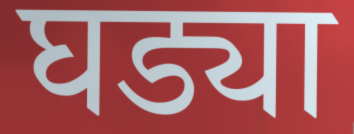
घड्या